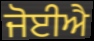
ਜੋਈਐ